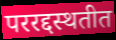
पररद्दस्थतीत